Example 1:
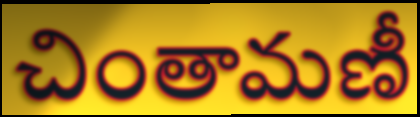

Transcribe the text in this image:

చింతామణీ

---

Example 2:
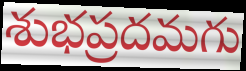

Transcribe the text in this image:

శుభప్రదమగు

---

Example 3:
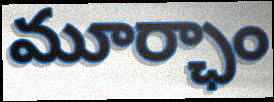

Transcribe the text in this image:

మూర్ఛాం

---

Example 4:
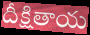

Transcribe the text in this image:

దీక్షితాయ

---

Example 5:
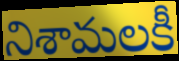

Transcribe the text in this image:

నిశామలకీ